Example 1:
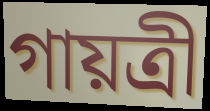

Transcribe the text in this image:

গায়ত্ৰী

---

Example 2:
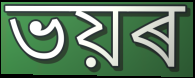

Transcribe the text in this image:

ভয়ৰ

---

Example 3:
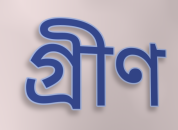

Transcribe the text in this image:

গ্ৰীণ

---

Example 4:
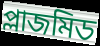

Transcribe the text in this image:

প্লাজমিড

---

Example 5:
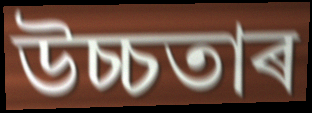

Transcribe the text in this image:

উচ্চতাৰ